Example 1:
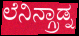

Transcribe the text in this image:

ಲೆನಿನ್ಗ್ರಾಡ್ನ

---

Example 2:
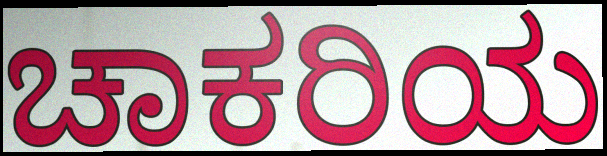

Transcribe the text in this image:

ಚಾಕರಿಯ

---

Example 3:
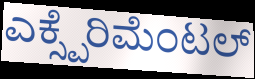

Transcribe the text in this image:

ಎಕ್ಸ್ಪೆರಿಮೆಂಟಲ್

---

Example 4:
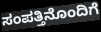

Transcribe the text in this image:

ಸಂಪತ್ತಿನೊಂದಿಗೆ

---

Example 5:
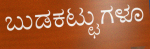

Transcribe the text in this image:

ಬುಡಕಟ್ಟುಗಳೂ